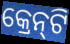
କ୍ରେନ୍‍ଟି